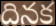
దినక